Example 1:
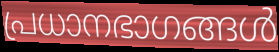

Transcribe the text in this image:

പ്രധാനഭാഗങ്ങൾ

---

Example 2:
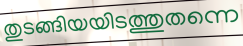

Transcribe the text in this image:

തുടങ്ങിയയിടത്തുതന്നെ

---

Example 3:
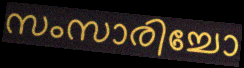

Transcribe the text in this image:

സംസാരിച്ചോ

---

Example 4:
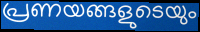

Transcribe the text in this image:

പ്രണയങ്ങളുടെയും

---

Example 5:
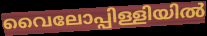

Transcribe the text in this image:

വൈലോപ്പിള്ളിയിൽ